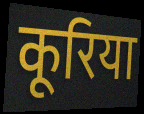
कूरिया